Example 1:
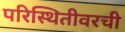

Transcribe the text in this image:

परिस्थितीवरची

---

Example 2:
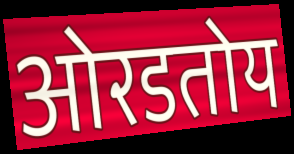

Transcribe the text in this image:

ओरडतोय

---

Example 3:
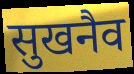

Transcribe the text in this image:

सुखनैव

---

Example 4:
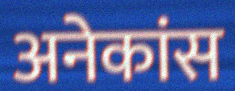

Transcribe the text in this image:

अनेकांस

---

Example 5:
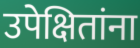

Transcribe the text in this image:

उपेक्षितांना